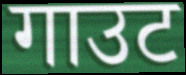
गाउट